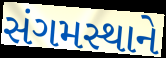
સંગમસ્થાને